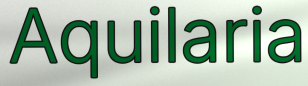
Aquilaria